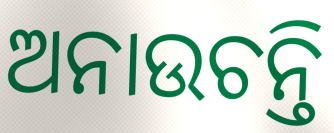
ଅନାଉଚନ୍ତି